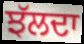
ਝੱਲਦਾ